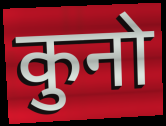
कुनो